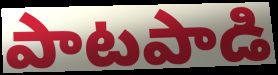
పాటపాడి